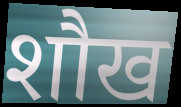
शौख